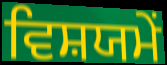
ਵਿਸ਼ਯਮੇਂ